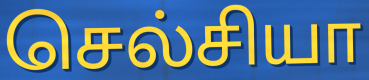
செல்சியா